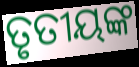
ତୃତୀୟଙ୍କ